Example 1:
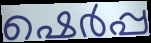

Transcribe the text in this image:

ഷെർപ്പ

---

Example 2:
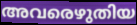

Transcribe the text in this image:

അവരെഴുതിയ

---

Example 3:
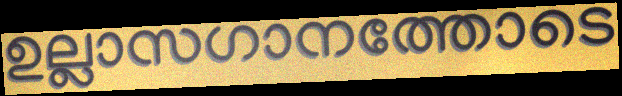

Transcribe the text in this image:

ഉല്ലാസഗാനത്തോടെ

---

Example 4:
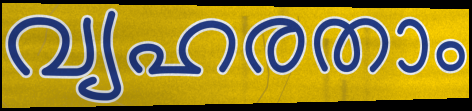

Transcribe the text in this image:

വ്യഹരതാം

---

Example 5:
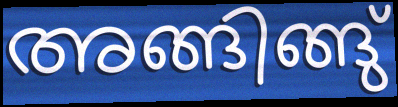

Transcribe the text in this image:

അങ്ങിങ്ങു്